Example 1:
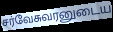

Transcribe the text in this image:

சர்வேசுவரனுடைய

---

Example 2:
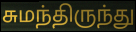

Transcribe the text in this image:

சுமந்திருந்து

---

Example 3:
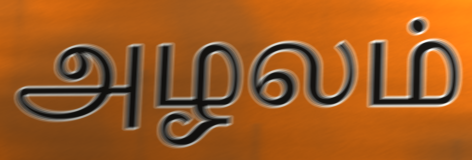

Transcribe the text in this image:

அழலம்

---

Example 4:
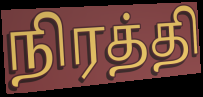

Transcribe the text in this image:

நிரத்தி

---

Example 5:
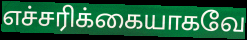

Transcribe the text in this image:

எச்சரிக்கையாகவே